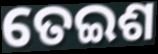
ତେଇଶ